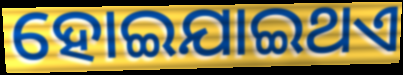
ହୋଇଯାଇଥଏ